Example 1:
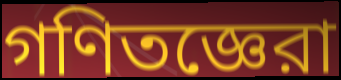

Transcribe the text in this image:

গণিতজ্ঞেরা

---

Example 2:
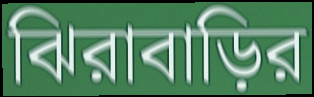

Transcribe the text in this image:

ঝিরাবাড়ির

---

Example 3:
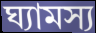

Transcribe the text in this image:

ঘ্যামস্য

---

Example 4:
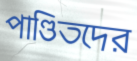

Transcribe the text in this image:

পাণ্ডিতদের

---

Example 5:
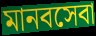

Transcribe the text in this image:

মানবসেবা